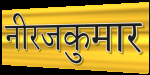
नीरजकुमार